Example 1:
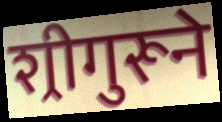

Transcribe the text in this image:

श्रीगुरूने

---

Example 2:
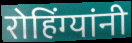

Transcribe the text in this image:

रोहिंग्यांनी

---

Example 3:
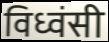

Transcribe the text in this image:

विध्वंसी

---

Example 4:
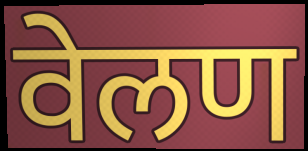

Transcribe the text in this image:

वेलण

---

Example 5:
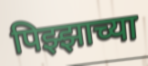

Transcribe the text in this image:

पिझ्झाच्या